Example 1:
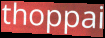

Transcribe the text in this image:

thoppai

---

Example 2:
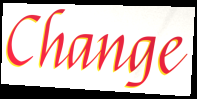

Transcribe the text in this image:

Change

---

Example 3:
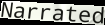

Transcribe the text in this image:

Narrated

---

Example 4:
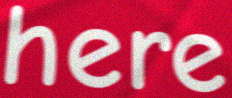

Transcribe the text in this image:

here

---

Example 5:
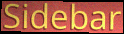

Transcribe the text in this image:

Sidebar